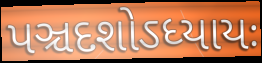
પઞ્ચદશોઽધ્યાયઃ